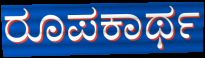
ರೂಪಕಾರ್ಥ